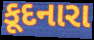
કૂદનારા